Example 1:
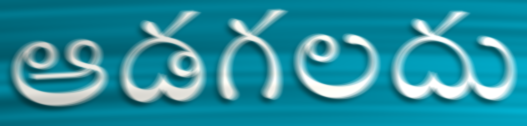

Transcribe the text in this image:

ఆడగలదు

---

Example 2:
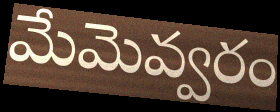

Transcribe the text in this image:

మేమెవ్వరం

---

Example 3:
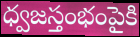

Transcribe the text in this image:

ధ్వజస్తంభంపైకి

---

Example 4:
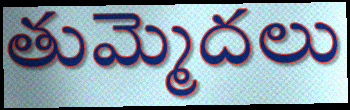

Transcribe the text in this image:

తుమ్మెదలు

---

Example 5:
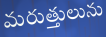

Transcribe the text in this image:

మరుత్తులును